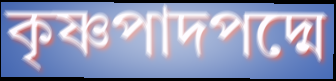
কৃষ্ণপাদপদ্মে